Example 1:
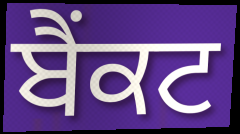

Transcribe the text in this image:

ਬੈਂਕਟ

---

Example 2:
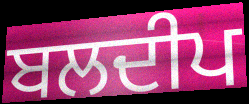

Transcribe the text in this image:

ਬਲਦੀਪ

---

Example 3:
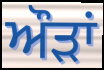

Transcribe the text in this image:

ਔੜਾਂ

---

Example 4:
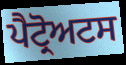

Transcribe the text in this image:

ਪੈਟ੍ਰੋਅਟਸ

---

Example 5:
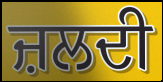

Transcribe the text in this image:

ਜ਼ਲਦੀ